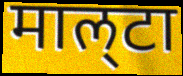
माल्टा